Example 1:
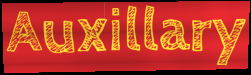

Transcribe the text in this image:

Auxillary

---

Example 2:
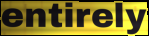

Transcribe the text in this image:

entirely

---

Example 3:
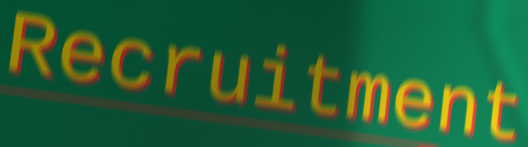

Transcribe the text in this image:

Recruitment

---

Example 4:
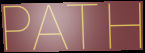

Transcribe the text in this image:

PATH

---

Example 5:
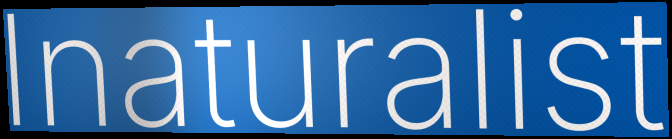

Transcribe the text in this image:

Inaturalist